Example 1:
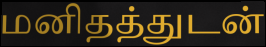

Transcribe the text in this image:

மனிதத்துடன்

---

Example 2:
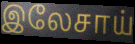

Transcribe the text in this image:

இலேசாய்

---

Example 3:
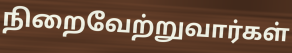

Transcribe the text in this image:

நிறைவேற்றுவார்கள்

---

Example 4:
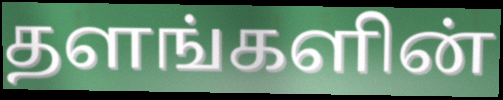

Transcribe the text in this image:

தளங்களின்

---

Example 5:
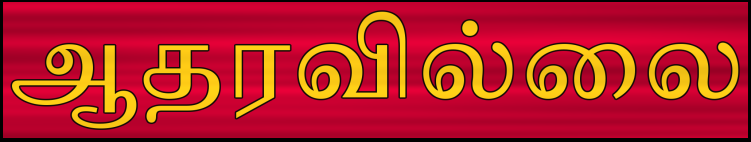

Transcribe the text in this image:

ஆதரவில்லை